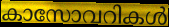
കാസോവറികൾ